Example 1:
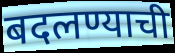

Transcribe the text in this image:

बदलण्याची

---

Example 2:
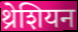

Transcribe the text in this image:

थ्रेशियन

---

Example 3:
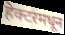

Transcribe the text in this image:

हेक्टरमधून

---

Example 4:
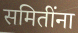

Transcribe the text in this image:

समितींना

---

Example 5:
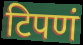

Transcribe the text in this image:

टिपणं